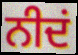
ਨੀਦਂ